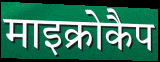
माइक्रोकैप